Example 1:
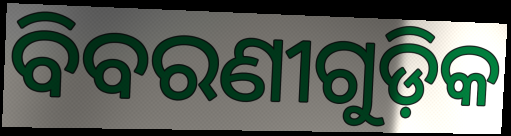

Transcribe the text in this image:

ବିବରଣୀଗୁଡ଼ିକ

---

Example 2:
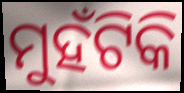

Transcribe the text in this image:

ମୁହଁଟିକି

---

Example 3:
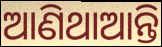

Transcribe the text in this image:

ଆଣିଥାଆନ୍ତି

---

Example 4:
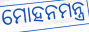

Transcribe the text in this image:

ମୋହନମନ୍ତ୍ର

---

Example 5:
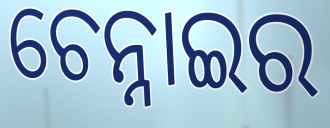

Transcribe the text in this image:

ଚେନ୍ନାଇର